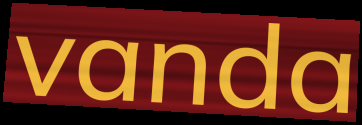
vanda